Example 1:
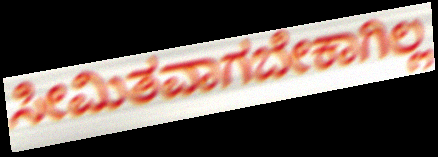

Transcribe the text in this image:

ಸೀಮಿತವಾಗಬೇಕಾಗಿಲ್ಲ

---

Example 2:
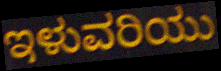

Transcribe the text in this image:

ಇಳುವರಿಯು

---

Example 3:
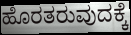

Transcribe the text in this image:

ಹೊರತರುವುದಕ್ಕೆ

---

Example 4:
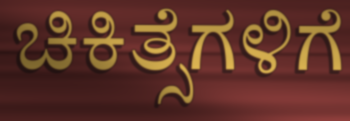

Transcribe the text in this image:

ಚಿಕಿತ್ಸೆಗಳಿಗೆ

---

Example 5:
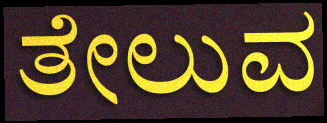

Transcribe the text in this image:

ತೇಲುವ